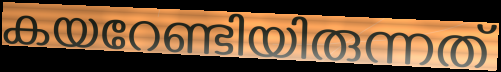
കയറേണ്ടിയിരുന്നത്